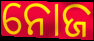
ନୋଜ